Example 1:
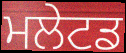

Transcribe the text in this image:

ਮਲੇਟਡ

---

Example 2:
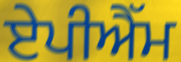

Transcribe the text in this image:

ਏਪੀਐੱਮ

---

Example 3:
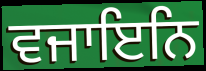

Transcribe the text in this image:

ਵਜਾਇਨਿ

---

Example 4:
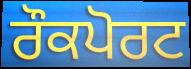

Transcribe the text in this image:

ਰੌਕਪੋਰਟ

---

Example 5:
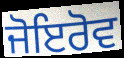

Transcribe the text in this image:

ਜੋਇਰੋਵ